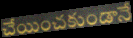
చేయించకుండానే